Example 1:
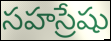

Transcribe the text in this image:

సహస్రేషు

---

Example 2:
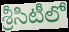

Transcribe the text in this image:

శ్రీసిటీలో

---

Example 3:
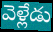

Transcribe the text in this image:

వెళ్లేడు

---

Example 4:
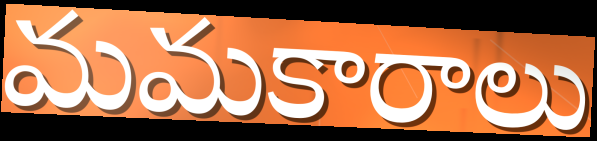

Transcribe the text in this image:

మమకారాలు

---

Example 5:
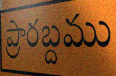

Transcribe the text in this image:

ప్రారబ్దము